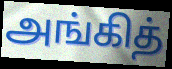
அங்கித்